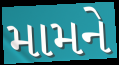
મામને